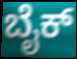
ಬೈಕ್